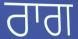
ਰਾਗ